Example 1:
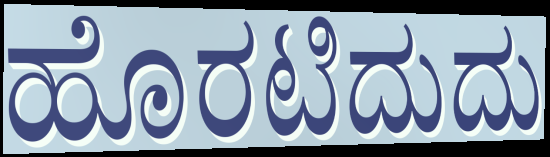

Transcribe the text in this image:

ಹೊರಟಿದುದು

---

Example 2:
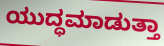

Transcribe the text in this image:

ಯುದ್ಧಮಾಡುತ್ತಾ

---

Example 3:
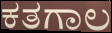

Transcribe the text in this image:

ಕತಗಾಲ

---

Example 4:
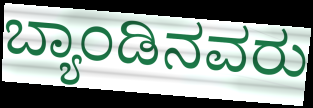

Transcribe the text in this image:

ಬ್ಯಾಂಡಿನವರು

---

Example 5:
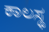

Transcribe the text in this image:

ಕಾಲಸ್ಥ